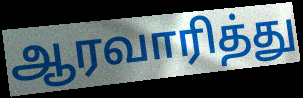
ஆரவாரித்து